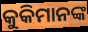
କୁକିମାନଙ୍କ